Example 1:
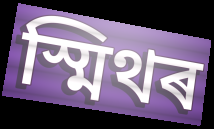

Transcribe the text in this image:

স্মিথৰ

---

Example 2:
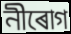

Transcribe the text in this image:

নীৰোগ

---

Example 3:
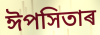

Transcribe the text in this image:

ঈপসিতাৰ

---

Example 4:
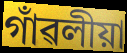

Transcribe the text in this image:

গাঁৱলীয়া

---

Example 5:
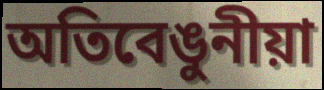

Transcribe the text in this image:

অতিবেঙুনীয়া